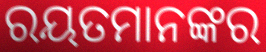
ରୟତମାନଙ୍କର